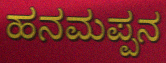
ಹನಮಪ್ಪನ